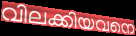
വിലക്കിയവനെ